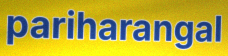
pariharangal